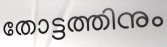
തോട്ടത്തിനും